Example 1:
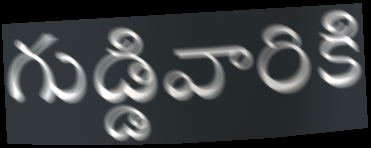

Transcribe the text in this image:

గుడ్డివారికి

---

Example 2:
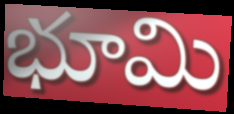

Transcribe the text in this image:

భూమి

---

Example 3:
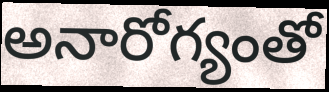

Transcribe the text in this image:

అనారోగ్యంతో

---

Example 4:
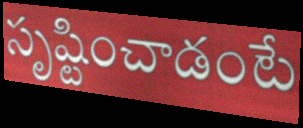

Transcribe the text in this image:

సృష్టించాడంటే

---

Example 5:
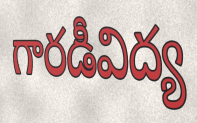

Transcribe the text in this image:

గారడీవిద్య